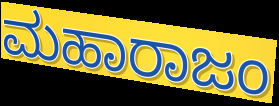
ಮಹಾರಾಜಂ